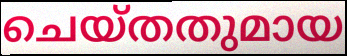
ചെയ്തതുമായ